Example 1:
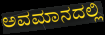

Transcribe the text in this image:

ಅವಮಾನದಲ್ಲಿ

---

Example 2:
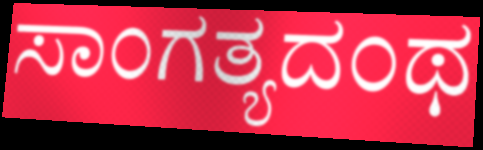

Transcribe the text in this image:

ಸಾಂಗತ್ಯದಂಥ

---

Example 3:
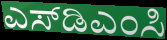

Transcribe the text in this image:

ಎಸ್‌ಡಿಎಂಸಿ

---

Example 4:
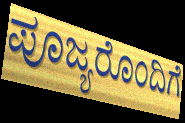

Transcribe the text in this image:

ಪೂಜ್ಯರೊಂದಿಗೆ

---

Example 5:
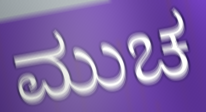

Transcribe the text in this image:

ಮುಚ